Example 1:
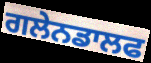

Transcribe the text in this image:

ਗਲੇਨਡਾਲਫ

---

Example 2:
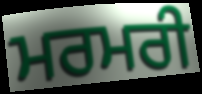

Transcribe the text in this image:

ਮਰਮਰੀ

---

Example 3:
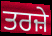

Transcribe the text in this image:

ਤਰਜ਼ੇ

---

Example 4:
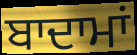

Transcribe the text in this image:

ਬਾਦਾਮਾਂ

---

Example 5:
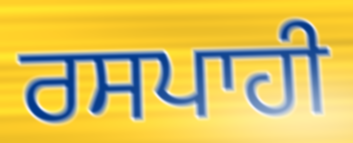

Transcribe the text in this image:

ਰਸਪਾਹੀ